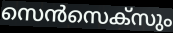
സെൻസെക്സും